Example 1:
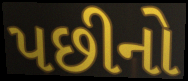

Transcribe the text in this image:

પછીનો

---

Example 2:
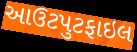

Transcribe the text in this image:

આઉટપુટફાઇલ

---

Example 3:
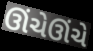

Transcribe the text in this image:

ઊંચેઊંચે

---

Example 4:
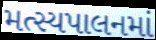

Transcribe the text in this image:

મત્સ્યપાલનમાં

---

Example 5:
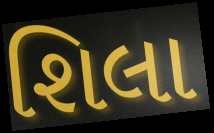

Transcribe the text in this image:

શિલા